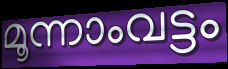
മൂന്നാംവട്ടം